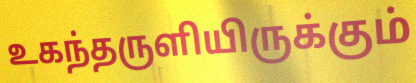
உகந்தருளியிருக்கும்